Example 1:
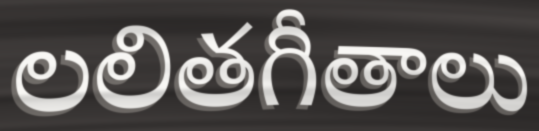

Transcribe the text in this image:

లలితగీతాలు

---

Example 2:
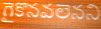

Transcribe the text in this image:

గైకొనవలెనని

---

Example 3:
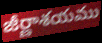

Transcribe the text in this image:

జీర్ణాశయము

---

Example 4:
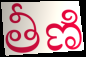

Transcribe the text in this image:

తీణి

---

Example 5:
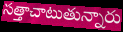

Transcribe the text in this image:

సత్తాచాటుతున్నారు